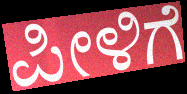
ಪೀಳಿಗೆ